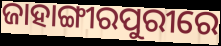
ଜାହାଙ୍ଗୀରପୁରୀରେ